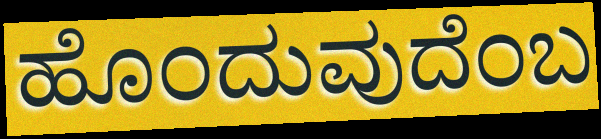
ಹೊಂದುವುದೆಂಬ